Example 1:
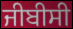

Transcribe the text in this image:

ਜੀਬੀਸੀ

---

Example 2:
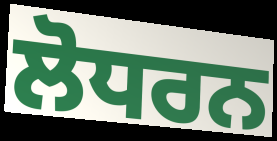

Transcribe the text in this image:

ਲੋਧਰਨ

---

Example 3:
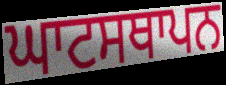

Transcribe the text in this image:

ਘਾਟਸਥਾਪਨ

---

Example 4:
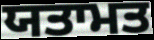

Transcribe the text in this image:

ਯਤਾਮਤ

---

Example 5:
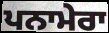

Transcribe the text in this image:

ਪਨਾਮੇਰਾ